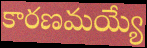
కారణమయ్యే